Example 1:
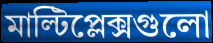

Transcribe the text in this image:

মাল্টিপ্লেক্সগুলো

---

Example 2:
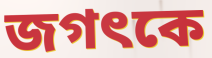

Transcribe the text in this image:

জগৎকে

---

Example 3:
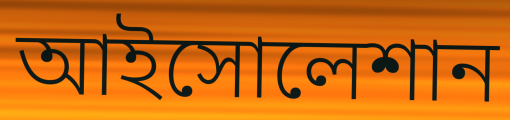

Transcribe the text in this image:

আইসোলেশান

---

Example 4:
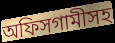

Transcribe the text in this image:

অফিসগামীসহ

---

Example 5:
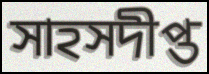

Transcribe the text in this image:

সাহসদীপ্ত